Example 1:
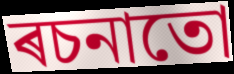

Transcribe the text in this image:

ৰচনাতো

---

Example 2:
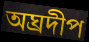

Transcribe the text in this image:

অঘ্ৰদীপ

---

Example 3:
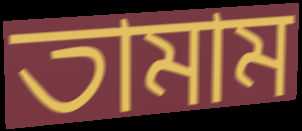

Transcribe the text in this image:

তামাম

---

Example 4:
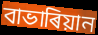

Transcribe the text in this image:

বাভাৰিয়ান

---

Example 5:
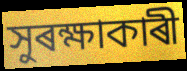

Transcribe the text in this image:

সুৰক্ষাকাৰী